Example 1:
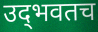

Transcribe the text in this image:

उद्‌भवतच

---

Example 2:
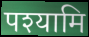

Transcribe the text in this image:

पश्यामि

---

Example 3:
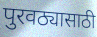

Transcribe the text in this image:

पुरवठ्यासाठी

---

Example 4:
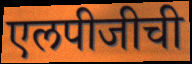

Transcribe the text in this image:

एलपीजीची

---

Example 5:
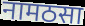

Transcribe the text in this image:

नामठसा